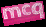
mcq